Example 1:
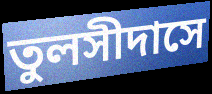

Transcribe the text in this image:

তুলসীদাসে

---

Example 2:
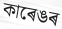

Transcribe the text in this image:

কাৰেঙৰ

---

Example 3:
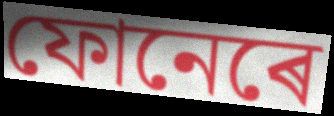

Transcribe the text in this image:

ফোনেৰে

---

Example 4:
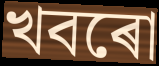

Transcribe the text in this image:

খবৰো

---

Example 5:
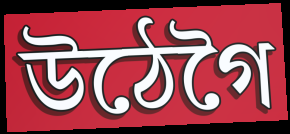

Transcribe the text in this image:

উঠেগৈ